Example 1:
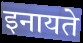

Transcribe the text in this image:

इनायते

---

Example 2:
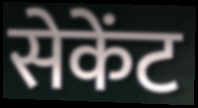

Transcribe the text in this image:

सेकेंट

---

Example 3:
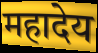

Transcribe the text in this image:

महादेय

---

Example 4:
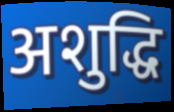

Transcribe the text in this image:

अशुद्धि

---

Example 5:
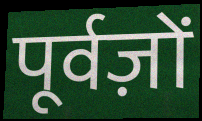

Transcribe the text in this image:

पूर्वज़ों